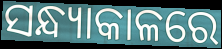
ସନ୍ଧ୍ୟାକାଳରେ